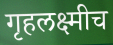
गृहलक्ष्मीच